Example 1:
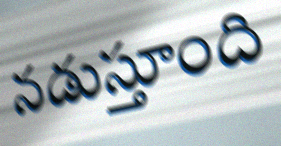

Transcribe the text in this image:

నడుస్తూంది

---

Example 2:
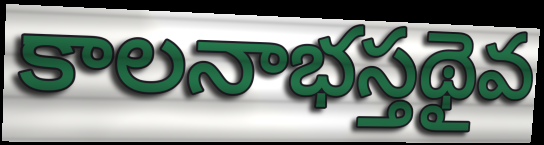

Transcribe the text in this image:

కాలనాభస్తథైవ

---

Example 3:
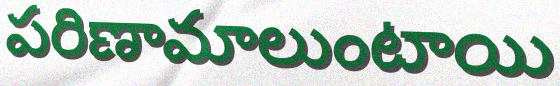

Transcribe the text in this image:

పరిణామాలుంటాయి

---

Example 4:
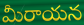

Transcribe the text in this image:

మీరాయన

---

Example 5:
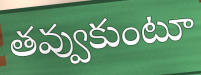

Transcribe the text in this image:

తవ్వుకుంటూ